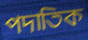
পদাতিক